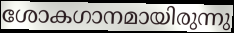
ശോകഗാനമായിരുന്നു